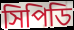
সিপিডি